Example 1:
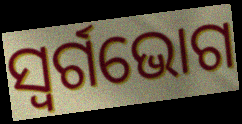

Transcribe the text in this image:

ସ୍ୱର୍ଗଭୋଗ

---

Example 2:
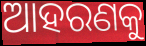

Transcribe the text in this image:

ଆହରଣକୁ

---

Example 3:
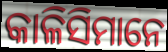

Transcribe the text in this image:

କାଳିସିମାନେ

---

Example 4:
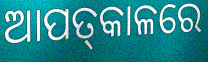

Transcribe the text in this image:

ଆପତ୍‌କାଳରେ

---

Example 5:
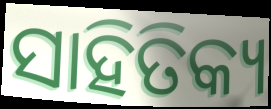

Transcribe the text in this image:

ସାହିତିକ୍ୟ